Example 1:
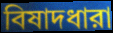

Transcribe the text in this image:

বিষাদধারা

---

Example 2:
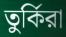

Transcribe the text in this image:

তুর্কিরা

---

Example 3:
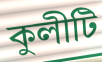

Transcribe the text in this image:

কুলীটি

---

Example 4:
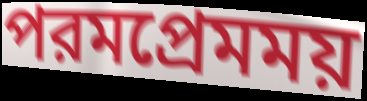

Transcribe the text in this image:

পরমপ্রেমময়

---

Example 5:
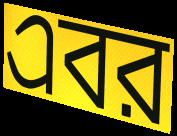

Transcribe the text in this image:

এবর